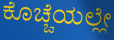
ಕೊಚ್ಚೆಯಲ್ಲೇ